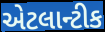
એટલાન્ટીક